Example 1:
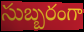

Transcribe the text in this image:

సుబ్బరంగా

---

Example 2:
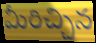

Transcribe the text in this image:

మీరిచ్చిన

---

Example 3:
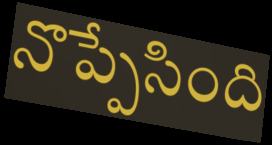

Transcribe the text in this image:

నొప్పేసింది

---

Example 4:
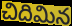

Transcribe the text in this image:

చిదిమిన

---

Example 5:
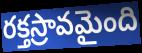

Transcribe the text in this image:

రక్తస్రావమైంది